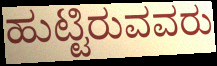
ಹುಟ್ಟಿರುವವರು